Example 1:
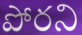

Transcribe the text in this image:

పోరని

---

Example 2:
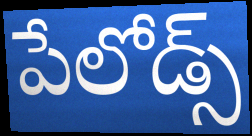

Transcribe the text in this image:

పేలోడ్స్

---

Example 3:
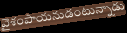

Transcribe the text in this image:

వైశంపాయనుడంటున్నాడు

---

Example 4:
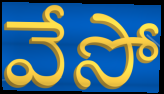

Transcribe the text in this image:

వేసో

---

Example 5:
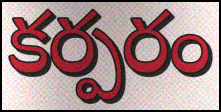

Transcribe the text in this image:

కర్పరం